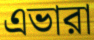
এভারা